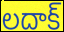
లదాక్